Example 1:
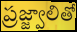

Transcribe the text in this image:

ప్రజ్జ్వాలితో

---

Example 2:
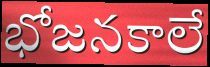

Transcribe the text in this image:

భోజనకాలే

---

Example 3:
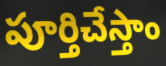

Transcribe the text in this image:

పూర్తిచేస్తాం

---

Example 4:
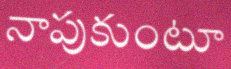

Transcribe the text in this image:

నాపుకుంటూ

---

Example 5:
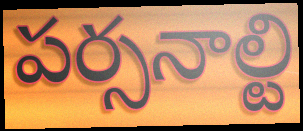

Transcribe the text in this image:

పర్సనాల్టి